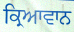
ਕ੍ਰਿਆਵਾਨ